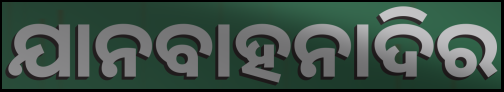
ଯାନବାହନାଦିର